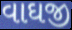
વાઘજી